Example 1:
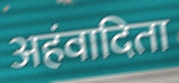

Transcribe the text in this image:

अहंवादिता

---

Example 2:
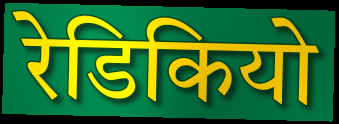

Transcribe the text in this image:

रेडिकियो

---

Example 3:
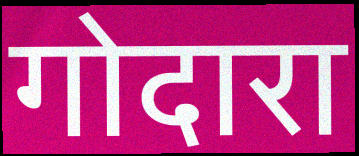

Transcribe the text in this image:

गोदारा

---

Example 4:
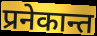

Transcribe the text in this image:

प्रनेकान्त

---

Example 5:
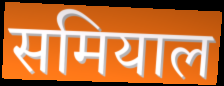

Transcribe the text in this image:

समियाल